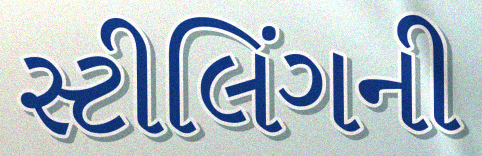
સ્ટીલિંગની